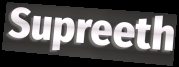
Supreeth